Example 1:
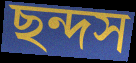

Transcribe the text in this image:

ছন্দস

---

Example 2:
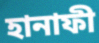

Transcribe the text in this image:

হানাফী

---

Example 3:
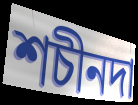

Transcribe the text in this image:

শচীনদা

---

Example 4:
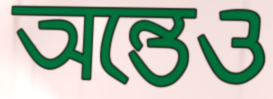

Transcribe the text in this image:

অন্তেও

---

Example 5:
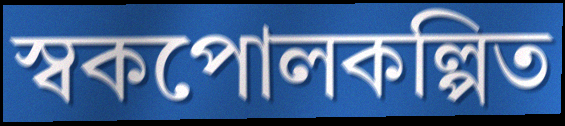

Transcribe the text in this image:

স্বকপোলকল্পিত